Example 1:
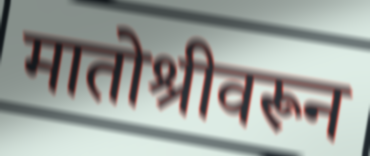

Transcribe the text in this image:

मातोश्रीवरून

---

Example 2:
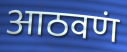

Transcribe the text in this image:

आठवणं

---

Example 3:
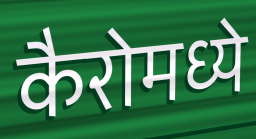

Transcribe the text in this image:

कैरोमध्ये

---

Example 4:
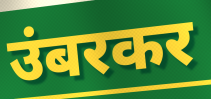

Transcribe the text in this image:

उंबरकर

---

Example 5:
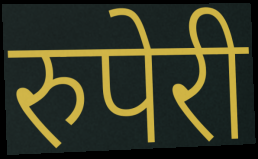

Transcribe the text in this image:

रुपेरी